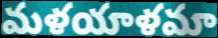
మళయాళమా